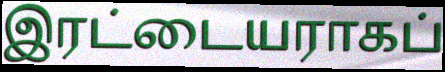
இரட்டையராகப்